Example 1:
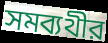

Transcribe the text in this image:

সমব্যথীর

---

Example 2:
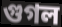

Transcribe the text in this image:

গুগল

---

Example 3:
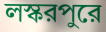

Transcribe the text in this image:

লস্করপুরে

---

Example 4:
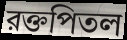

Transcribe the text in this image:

রক্তপিতল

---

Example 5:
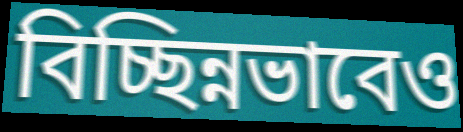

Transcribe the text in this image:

বিচ্ছিন্নভাবেও